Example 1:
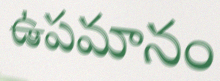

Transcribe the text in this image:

ఉపమానం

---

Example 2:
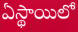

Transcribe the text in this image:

ఏస్థాయిలో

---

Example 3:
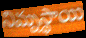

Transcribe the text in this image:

నిమ్నస్థాయి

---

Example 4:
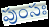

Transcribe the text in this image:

పుంసః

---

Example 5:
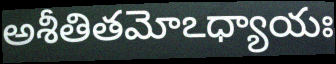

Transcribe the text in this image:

అశీతితమోఽధ్యాయః